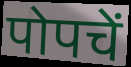
पोपचें